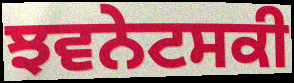
ਝਵਨੇਟਸਕੀ